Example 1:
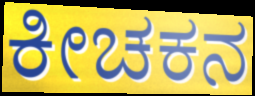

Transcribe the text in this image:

ಕೀಚಕನ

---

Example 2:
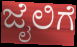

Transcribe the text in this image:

ಜೈಲಿಗೆ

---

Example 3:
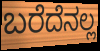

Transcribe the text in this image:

ಬರೆದೆನಲ್ಲ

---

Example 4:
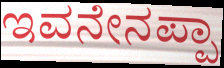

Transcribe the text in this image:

ಇವನೇನಪ್ಪಾ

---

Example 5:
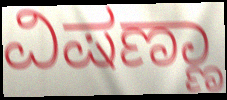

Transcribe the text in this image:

ವಿಷಣ್ಣಾ